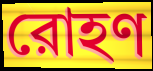
রোহণ